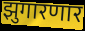
झुगारणार